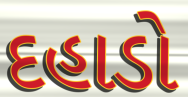
દહાડો